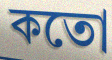
কতো